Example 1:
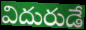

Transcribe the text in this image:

విదురుడే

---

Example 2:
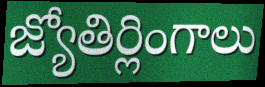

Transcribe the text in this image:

జ్యోతిర్లింగాలు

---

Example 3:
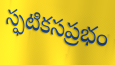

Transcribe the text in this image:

స్ఫటికసప్రభం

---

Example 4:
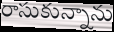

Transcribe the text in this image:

రాసుకున్నాను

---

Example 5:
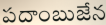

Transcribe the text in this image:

పదాంబుజేన